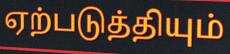
ஏற்படுத்தியும்